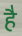
है